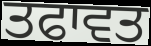
ਤਫਾਵਤ